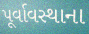
પૂર્વાવસ્થાના